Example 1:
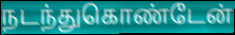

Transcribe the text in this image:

நடந்துகொண்டேன்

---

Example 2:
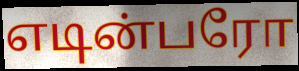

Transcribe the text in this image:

எடின்பரோ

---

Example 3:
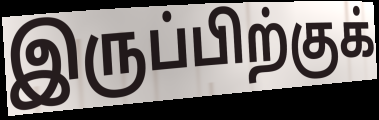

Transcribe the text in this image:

இருப்பிற்குக்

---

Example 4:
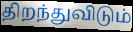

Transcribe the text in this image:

திறந்துவிடும்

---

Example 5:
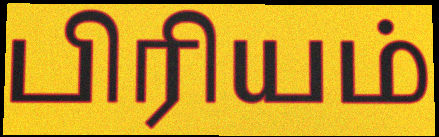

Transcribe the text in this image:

பிரியம்